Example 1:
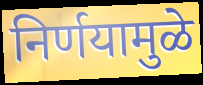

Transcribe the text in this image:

निर्णयामुळे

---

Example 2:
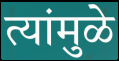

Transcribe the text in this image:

त्यांमुळे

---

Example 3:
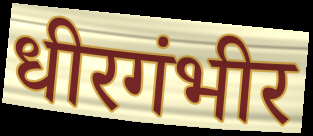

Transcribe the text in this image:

धीरगंभीर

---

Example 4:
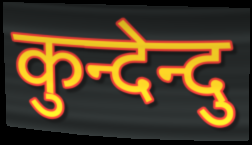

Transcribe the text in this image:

कुन्देन्दु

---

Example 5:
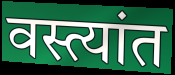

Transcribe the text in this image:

वस्त्यांत